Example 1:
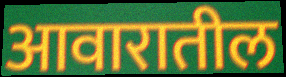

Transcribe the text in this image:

आवारातील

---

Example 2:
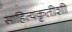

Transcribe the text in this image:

साहित्यकृतीशी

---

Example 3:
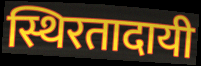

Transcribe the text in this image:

स्थिरतादायी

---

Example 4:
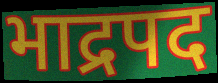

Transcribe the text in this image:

भाद्रपद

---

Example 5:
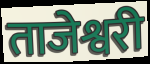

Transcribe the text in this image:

ताजेश्वरी